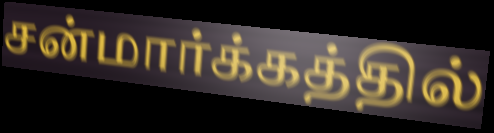
சன்மார்க்கத்தில்